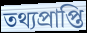
তথ্যপ্রাপ্তি